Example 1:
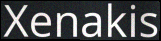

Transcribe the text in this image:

Xenakis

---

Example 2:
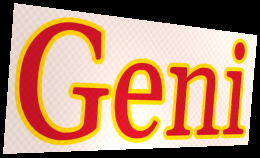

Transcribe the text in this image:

Geni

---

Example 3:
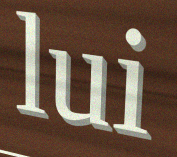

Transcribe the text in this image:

lui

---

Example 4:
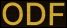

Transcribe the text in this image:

ODF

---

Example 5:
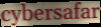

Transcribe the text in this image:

cybersafar